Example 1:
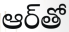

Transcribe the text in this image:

ఆర్‌తో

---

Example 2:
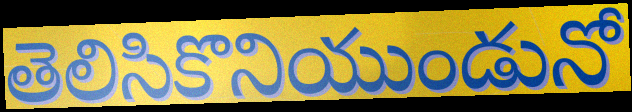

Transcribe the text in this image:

తెలిసికొనియుండునో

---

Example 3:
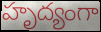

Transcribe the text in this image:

హృద్యంగా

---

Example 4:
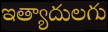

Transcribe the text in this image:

ఇత్యాదులగు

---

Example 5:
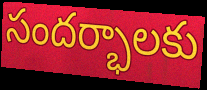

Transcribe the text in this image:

సందర్భాలకు